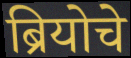
ब्रियोचे